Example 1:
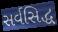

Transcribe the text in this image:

સર્વસિદ્ધ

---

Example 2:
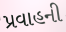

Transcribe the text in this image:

પ્રવાહની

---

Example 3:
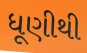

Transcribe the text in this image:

ધૂણીથી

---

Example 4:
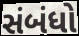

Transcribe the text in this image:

સંબંધો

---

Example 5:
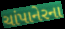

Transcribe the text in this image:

ચાંપાનેરના